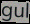
gul